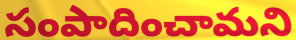
సంపాదించామని